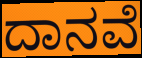
ದಾನವೆ